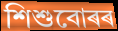
শিশুবোৰৰ